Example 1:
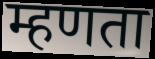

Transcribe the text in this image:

म्हणता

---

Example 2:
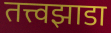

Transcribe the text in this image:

तत्त्वझाडा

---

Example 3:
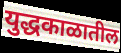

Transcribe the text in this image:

युद्धकाळातील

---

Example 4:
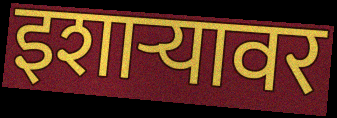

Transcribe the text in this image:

इशार्‍यावर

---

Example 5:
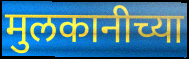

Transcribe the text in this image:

मुलकानीच्या